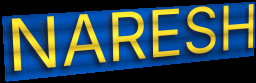
NARESH